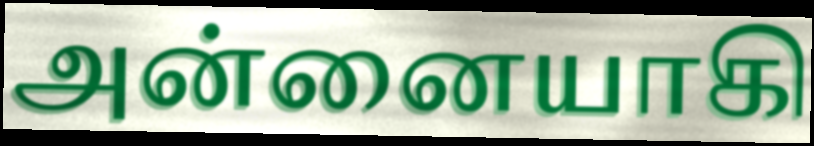
அன்னையாகி